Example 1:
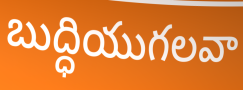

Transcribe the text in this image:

బుద్ధియుగలవా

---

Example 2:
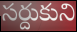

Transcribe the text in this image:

సర్దుకుని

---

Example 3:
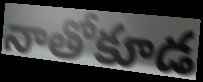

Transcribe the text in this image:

నాతోకూడ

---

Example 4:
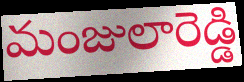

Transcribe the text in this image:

మంజులారెడ్డి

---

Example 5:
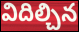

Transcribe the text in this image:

విదిల్చిన